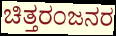
ಚಿತ್ತರಂಜನರ